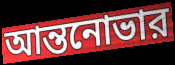
আন্তনোভার